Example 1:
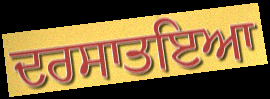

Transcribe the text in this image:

ਦਰਸਾਤਇਆ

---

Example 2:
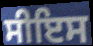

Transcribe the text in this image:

ਸੀਇਸ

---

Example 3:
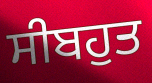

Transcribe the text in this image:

ਸੀਬਹੁਤ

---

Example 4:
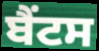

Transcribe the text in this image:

ਬੈਂਟਸ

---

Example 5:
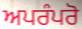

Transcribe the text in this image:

ਅਪਰੰਪਰੋ